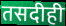
तसदीही